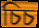
চিচ